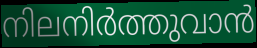
നിലനിർത്തുവാൻ